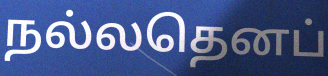
நல்லதெனப்